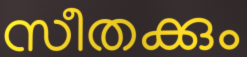
സീതക്കും